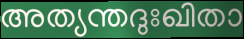
അത്യന്തദുഃഖിതാ